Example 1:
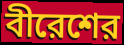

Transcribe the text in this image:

বীরেশের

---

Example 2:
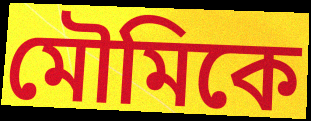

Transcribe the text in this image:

মৌমিকে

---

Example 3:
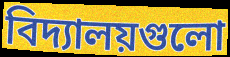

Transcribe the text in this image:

বিদ্যালয়গুলো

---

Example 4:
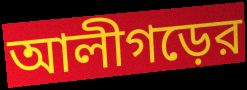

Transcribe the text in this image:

আলীগড়ের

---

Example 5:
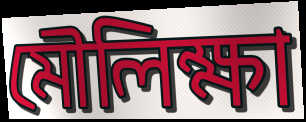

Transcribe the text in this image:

মৌলিক্ষা